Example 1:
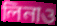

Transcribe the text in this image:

লিনাও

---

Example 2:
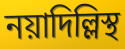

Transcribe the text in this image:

নয়াদিল্লিস্থ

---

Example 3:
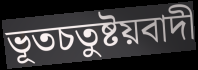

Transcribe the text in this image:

ভূতচতুষ্টয়বাদী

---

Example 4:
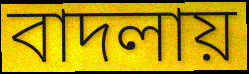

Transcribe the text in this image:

বাদলায়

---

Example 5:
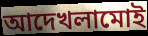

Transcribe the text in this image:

আদেখলামোই